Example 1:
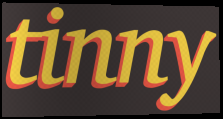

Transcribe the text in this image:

tinny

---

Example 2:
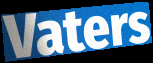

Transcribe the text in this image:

Vaters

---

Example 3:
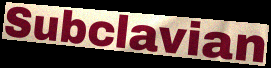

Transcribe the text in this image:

Subclavian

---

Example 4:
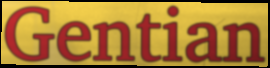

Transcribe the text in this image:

Gentian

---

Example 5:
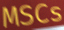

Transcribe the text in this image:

MSCs